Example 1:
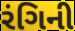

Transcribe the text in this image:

રંગિની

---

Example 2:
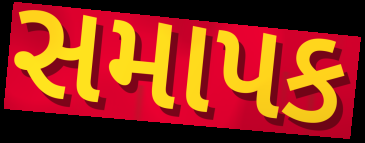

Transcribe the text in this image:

સમાપક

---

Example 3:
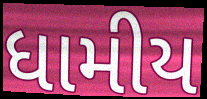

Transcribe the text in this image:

ધામીય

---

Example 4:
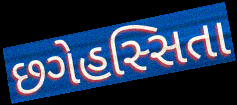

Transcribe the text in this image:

છગેહસ્સિતા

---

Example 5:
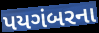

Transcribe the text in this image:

પયગંબરના